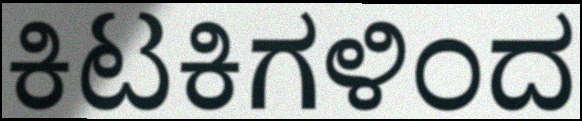
ಕಿಟಕಿಗಳಿಂದ